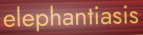
elephantiasis